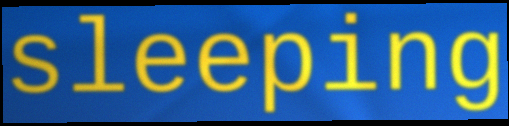
sleeping